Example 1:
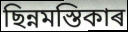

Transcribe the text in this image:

ছিন্নমস্তিকাৰ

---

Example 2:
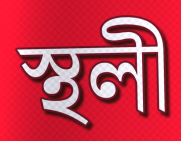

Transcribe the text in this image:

স্থলী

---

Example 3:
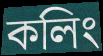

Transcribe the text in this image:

কলিং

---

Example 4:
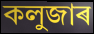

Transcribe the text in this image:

কলুজাৰ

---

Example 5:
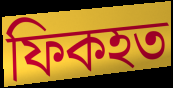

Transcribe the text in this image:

ফিকহত